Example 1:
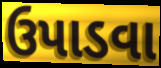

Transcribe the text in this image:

ઉપાડવા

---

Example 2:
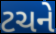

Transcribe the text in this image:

ટચને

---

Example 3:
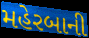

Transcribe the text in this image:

મહેરબાની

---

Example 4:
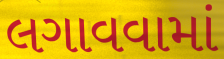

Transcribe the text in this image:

લગાવવામાં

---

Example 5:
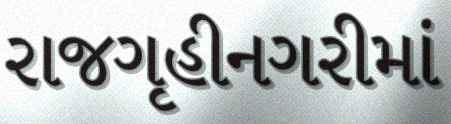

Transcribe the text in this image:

રાજગૃહીનગરીમાં